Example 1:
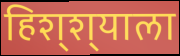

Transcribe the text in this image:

हिश्श्याला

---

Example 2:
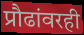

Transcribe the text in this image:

प्रौढांवरही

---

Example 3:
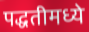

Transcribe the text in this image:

पद्धतीमध्ये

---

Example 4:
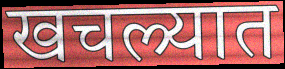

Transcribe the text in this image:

खचल्यात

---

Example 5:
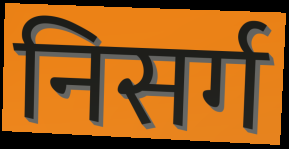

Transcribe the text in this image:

निसर्ग